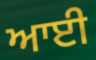
ਆਈ